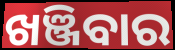
ଖଞ୍ଜିବାର